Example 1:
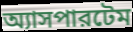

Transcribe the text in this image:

অ্যাসপারটেম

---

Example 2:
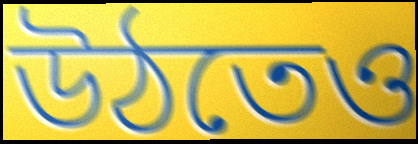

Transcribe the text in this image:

উঠতেও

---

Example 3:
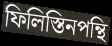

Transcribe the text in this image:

ফিলিস্তিনপন্থি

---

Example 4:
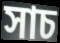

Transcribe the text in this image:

সাচ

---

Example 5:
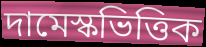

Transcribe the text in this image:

দামেস্কভিত্তিক